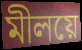
মীলয়ে